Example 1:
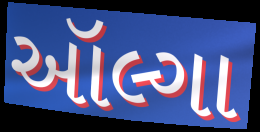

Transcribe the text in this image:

ઑલ્ગા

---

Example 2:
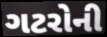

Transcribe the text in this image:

ગટરોની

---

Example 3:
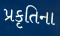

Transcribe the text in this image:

પ્રકૃતિના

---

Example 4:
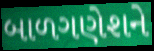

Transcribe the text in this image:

બાળગણેશને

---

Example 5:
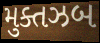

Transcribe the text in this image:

મુક્તઝબ